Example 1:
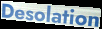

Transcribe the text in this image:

Desolation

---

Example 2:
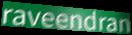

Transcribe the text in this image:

raveendran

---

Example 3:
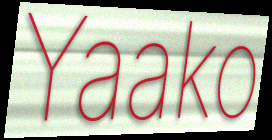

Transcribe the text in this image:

Yaako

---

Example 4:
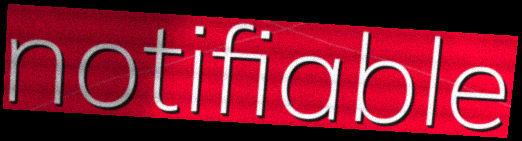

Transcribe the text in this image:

notifiable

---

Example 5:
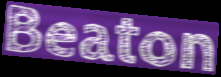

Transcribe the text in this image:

Beaton